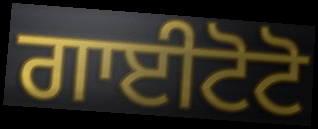
ਗਾਈਟੋਟੋ